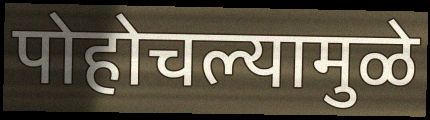
पोहोचल्यामुळे